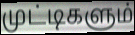
முட்டிகளும்